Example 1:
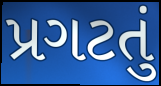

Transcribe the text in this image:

પ્રગટતું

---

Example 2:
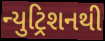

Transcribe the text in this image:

ન્યુટ્રિશનથી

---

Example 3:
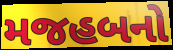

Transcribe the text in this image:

મજહબનો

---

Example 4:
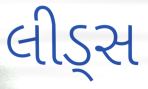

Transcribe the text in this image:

લીડ્સ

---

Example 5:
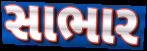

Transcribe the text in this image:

સાભાર